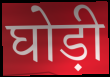
घोड़ी